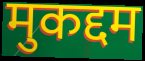
मुकद्दम